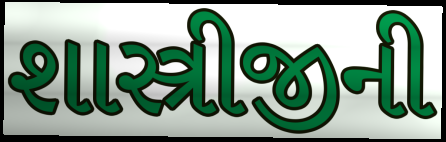
શાસ્ત્રીજીની